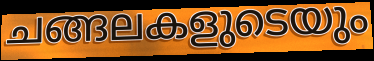
ചങ്ങലകളുടെയും